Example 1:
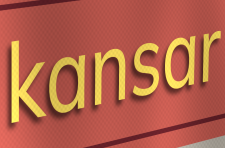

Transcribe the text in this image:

kansar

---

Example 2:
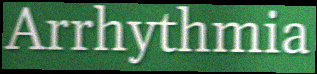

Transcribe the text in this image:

Arrhythmia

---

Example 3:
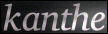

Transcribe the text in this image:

kanthe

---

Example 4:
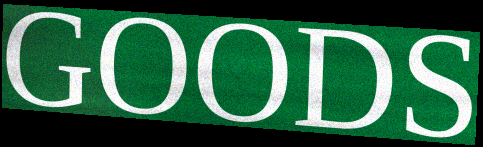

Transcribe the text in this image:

GOODS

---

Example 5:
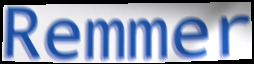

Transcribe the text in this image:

Remmer